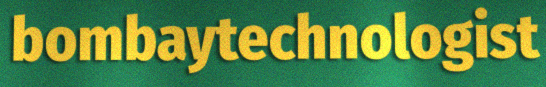
bombaytechnologist